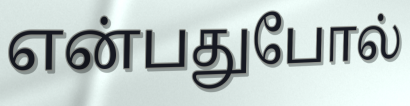
என்பதுபோல்